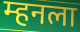
म्हनला